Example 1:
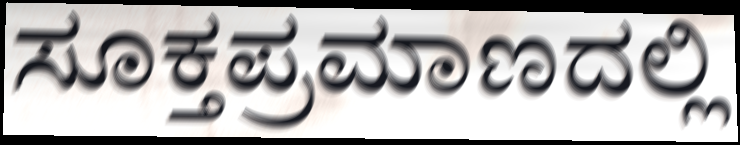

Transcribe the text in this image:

ಸೂಕ್ತಪ್ರಮಾಣದಲ್ಲಿ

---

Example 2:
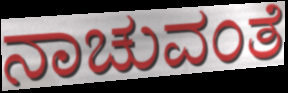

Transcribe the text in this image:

ನಾಚುವಂತೆ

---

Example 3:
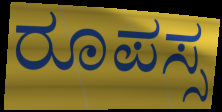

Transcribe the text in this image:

ರೂಪಸ್ಸ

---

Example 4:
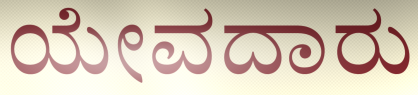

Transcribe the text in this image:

ಯೇವದಾರು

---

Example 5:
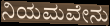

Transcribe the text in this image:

ನಿಯಮವೇನು